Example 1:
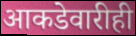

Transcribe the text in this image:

आकडेवारीही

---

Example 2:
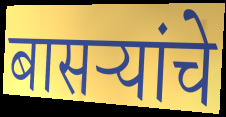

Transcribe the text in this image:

बासऱ्यांचे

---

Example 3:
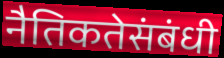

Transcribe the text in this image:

नैतिकतेसंबंधी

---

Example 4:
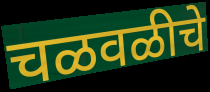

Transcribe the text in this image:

चळवळीचे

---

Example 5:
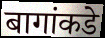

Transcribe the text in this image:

बागांकडे